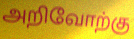
அறிவோற்கு